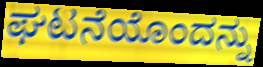
ಘಟನೆಯೊಂದನ್ನು